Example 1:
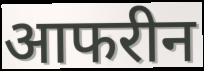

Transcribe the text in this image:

आफरीन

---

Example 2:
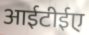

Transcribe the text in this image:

आईटीईए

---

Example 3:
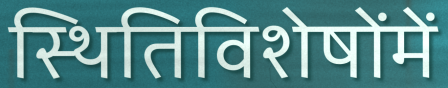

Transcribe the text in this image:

स्थितिविशेषोंमें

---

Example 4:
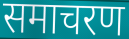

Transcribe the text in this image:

समाचरण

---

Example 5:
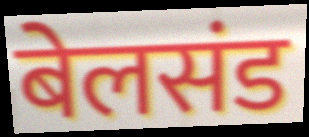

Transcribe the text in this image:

बेलसंड